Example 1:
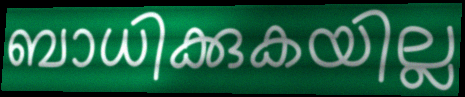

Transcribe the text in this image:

ബാധിക്കുകയില്ല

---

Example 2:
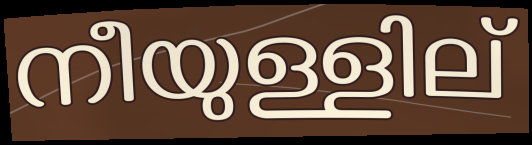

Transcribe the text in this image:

നീയുള്ളില്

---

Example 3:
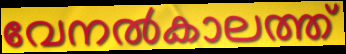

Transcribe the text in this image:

വേനൽകാലത്ത്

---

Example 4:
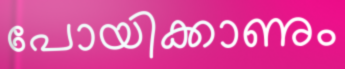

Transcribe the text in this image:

പോയിക്കാണും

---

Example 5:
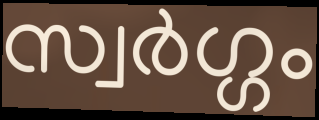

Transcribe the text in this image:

സ്വർഗ്ഗം